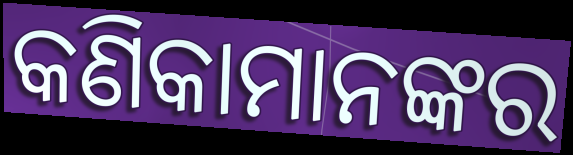
କଣିକାମାନଙ୍କର